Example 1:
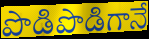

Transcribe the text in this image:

పొడిపొడిగానే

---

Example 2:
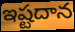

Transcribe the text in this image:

ఇష్టదాన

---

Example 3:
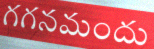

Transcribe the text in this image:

గగనమందు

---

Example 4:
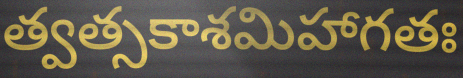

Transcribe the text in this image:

త్వత్సకాశమిహాగతః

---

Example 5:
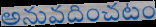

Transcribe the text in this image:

అనువదించటం